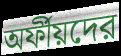
অর্ফীয়দের